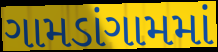
ગામડાંગામમાં